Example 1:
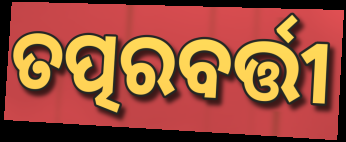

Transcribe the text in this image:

ତତ୍ପରବର୍ତ୍ତୀ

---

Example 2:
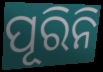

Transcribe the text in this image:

ପୂରିନି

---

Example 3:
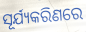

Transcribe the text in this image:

ସୂର୍ଯ୍ୟକରିଣରେ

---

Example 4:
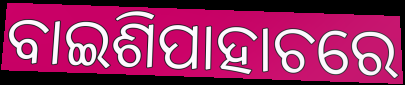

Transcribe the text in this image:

ବାଇଶିପାହାଚରେ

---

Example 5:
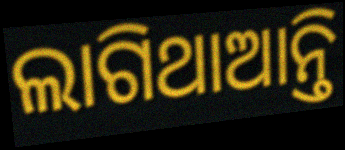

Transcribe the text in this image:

ଲାଗିଥାଆନ୍ତି